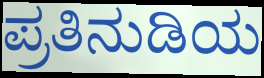
ಪ್ರತಿನುಡಿಯ